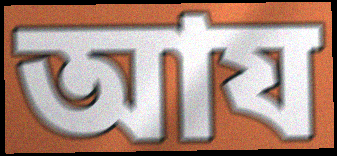
আয